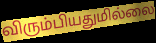
விரும்பியதுமில்லை